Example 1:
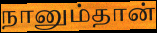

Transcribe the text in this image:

நானும்தான்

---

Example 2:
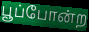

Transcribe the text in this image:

பூப்போன்ற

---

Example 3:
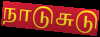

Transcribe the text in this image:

நாடுசுடு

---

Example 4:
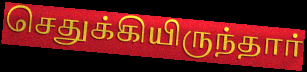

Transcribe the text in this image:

செதுக்கியிருந்தார்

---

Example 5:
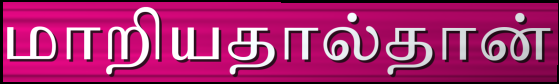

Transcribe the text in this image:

மாறியதால்தான்